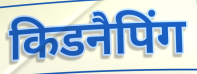
किडनैपिंग